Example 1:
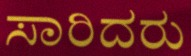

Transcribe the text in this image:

ಸಾರಿದರು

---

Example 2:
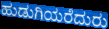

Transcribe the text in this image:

ಹುಡುಗಿಯರೆದುರು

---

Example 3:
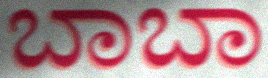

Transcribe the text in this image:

ಬಾಬಾ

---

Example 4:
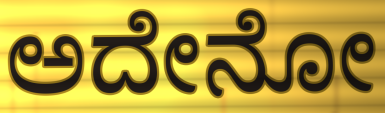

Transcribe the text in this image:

ಅದೇನೋ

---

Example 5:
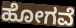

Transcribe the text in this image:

ಹೋಗವೆ